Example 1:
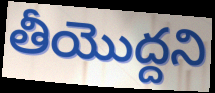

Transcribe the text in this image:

తీయొద్దని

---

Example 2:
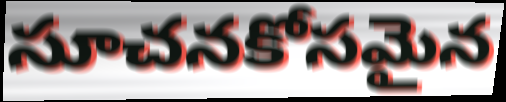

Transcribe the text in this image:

సూచనకోసమైన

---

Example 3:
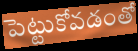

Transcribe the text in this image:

పెట్టుకోవడంతో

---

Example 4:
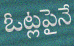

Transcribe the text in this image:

ఓట్లపైనే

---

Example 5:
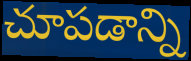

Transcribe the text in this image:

చూపడాన్ని